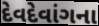
દેવદેવાંગના